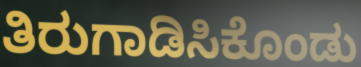
ತಿರುಗಾಡಿಸಿಕೊಂಡು